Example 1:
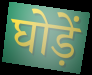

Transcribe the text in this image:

घोड़ें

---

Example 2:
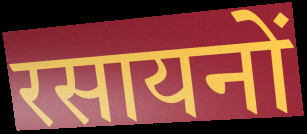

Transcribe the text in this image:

रसायनों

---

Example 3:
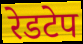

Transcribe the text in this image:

रेडटेप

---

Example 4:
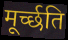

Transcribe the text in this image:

मूर्च्छति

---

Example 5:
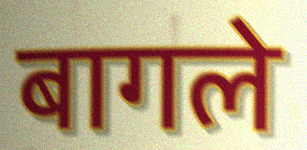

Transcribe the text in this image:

बागले